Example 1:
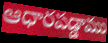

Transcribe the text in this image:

ఆధారపడ్డాము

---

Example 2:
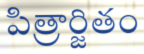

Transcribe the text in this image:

పిత్రార్జితం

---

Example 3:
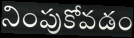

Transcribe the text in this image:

నింపుకోవడం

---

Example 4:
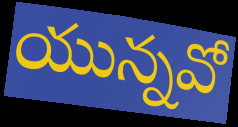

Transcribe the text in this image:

యున్నవో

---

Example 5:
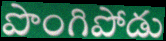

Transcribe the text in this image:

పొంగిపోడు